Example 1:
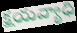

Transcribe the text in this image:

క్షయవ్యాధి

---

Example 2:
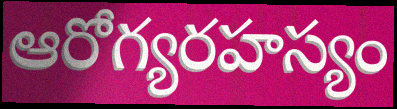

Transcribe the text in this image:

ఆరోగ్యరహస్యం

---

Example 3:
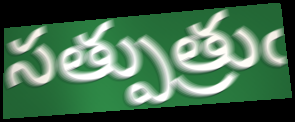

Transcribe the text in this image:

సత్పుత్రుఁ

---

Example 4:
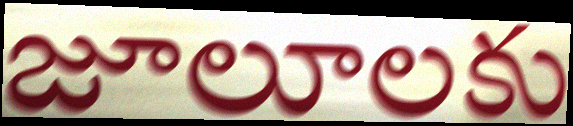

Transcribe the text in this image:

జూలూలకు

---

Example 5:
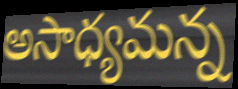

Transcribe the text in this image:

అసాధ్యమన్న